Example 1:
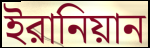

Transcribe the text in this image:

ইরানিয়ান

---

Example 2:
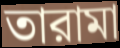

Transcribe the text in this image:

তারামা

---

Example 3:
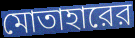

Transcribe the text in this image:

মোতাহারের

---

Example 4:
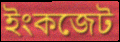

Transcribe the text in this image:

ইংকজেট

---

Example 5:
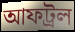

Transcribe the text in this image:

আফট্রল